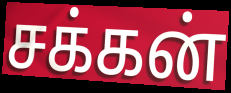
சக்கன்